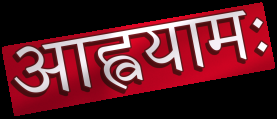
आह्वयामः